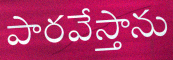
పారవేస్తాను